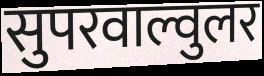
सुपरवाल्वुलर